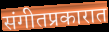
संगीतप्रकारात